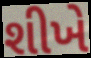
શીખે